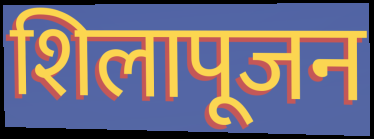
शिलापूजन